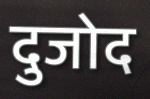
दुजोद